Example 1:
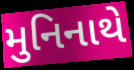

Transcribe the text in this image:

મુનિનાથે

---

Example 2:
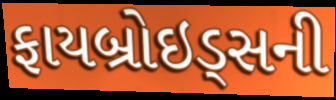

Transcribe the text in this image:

ફાયબ્રોઇડ્સની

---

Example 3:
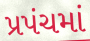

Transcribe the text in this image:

પ્રપંચમાં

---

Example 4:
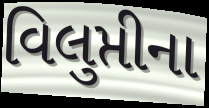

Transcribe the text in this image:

વિલુપ્તીના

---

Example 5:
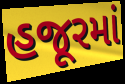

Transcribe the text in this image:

હજૂરમાં